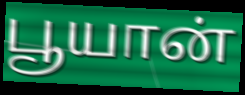
பூயான்